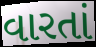
વારતાં